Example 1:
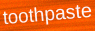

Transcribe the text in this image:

toothpaste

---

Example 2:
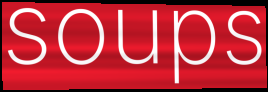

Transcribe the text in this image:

soups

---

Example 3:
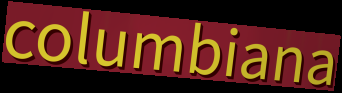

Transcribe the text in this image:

columbiana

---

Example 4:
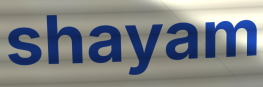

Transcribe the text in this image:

shayam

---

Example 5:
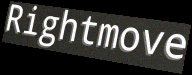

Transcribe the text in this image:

Rightmove